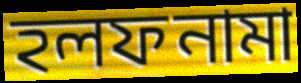
হলফনামা